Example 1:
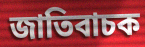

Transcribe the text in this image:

জাতিবাচক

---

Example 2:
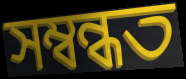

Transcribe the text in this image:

সম্বন্ধত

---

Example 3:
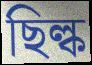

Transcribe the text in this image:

ছিল্ক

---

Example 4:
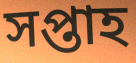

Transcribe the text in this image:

সপ্তাহ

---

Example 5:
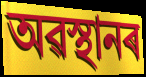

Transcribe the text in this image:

অৱস্থানৰ